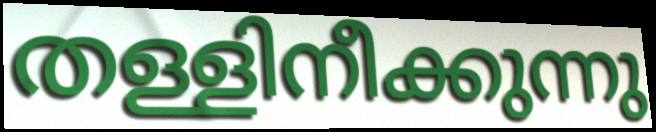
തള്ളിനീക്കുന്നു